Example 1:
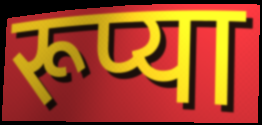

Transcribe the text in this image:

रूप्या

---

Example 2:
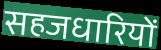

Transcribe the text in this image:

सहजधारियों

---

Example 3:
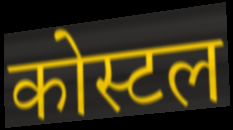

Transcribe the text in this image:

कोस्टल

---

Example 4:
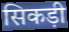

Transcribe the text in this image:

सिकड़ी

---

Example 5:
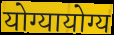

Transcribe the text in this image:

योग्यायोग्य